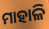
ମାହାଳି